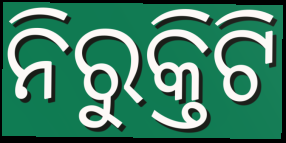
ନିରୁକ୍ତିଟି